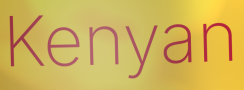
Kenyan